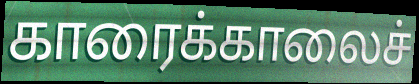
காரைக்காலைச்